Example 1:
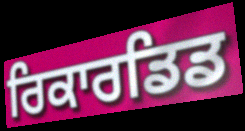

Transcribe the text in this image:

ਰਿਕਾਰਡਿਡ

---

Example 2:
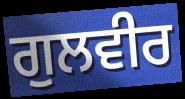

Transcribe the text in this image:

ਗੁਲਵੀਰ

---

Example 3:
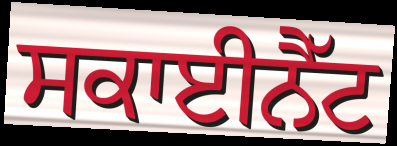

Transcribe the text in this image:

ਸਕਾਈਨੈੱਟ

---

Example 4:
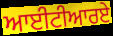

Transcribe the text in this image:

ਆਈਟੀਆਰਏ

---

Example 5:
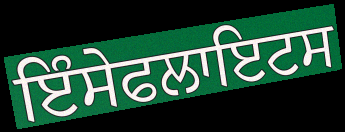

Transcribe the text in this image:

ਇੰਸੇਫਲਾਇਟਸ